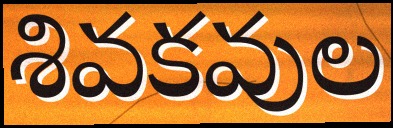
శివకవుల